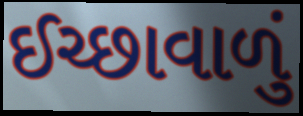
ઈચ્છાવાળું